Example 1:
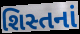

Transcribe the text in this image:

શિસ્તનાં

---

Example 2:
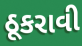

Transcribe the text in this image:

ઠૂકરાવી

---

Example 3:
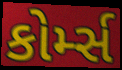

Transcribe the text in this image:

કોર્મ્સ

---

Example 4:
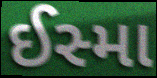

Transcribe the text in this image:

ઈસ્મા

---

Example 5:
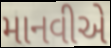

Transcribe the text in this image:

માનવીએ